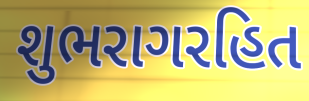
શુભરાગરહિત